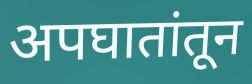
अपघातांतून